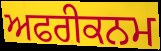
ਅਫਰੀਕਨਮ